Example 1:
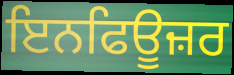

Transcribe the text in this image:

ਇਨਫਿਊਜ਼ਰ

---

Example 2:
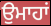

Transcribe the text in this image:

ਉਮਾਹਾਂ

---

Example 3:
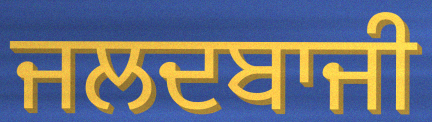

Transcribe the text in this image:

ਜਲਦਬਾਜੀ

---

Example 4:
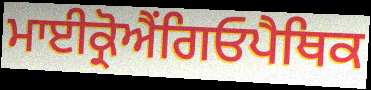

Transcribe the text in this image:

ਮਾਈਕ੍ਰੋਐਂਗਿਓਪੈਥਿਕ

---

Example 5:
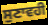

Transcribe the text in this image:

ਸੁਣਾਵਹੀ